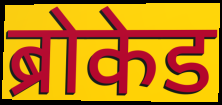
ब्रोकेड